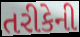
તરીકેની